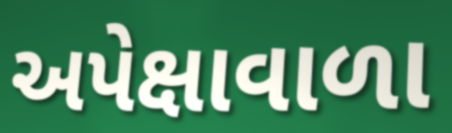
અપેક્ષાવાળા